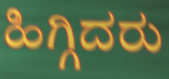
ಹಿಗ್ಗಿದರು